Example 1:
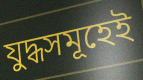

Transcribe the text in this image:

যুদ্ধসমূহেই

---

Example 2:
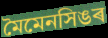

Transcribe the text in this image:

মৈমেনসিঙৰ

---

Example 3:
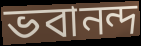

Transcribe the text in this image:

ভবানন্দ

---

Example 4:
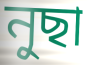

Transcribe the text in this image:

নুছা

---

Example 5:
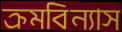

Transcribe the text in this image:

ক্ৰমবিন্যাস